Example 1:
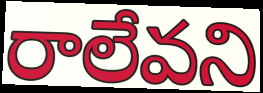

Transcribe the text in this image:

రాలేవని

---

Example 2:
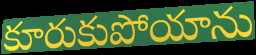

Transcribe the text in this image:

కూరుకుపోయాను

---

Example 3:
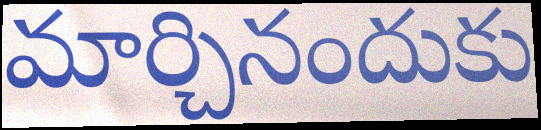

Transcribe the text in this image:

మార్చినందుకు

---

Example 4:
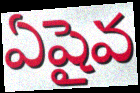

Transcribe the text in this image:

ఏషైవ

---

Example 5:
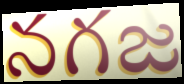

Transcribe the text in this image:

నగజ